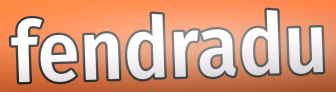
fendradu